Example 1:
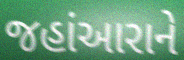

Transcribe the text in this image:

જહાંઆરાને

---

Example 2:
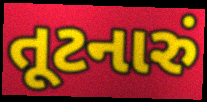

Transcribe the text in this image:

તૂટનારું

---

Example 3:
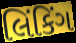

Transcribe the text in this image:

લિંકિંગ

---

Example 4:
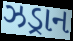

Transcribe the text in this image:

ઝડ્રાન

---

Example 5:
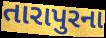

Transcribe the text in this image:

તારાપુરના